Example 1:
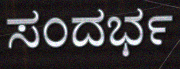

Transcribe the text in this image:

ಸಂದರ್ಭ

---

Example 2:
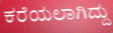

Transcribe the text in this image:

ಕರೆಯಲಾಗಿದ್ದು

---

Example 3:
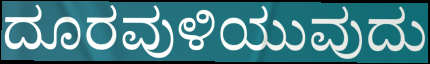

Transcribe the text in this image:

ದೂರವುಳಿಯುವುದು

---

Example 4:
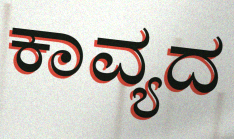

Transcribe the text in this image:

ಕಾವ್ಯದ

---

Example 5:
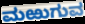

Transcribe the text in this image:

ಮಱುಗುವ